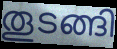
തൂടങ്ങി